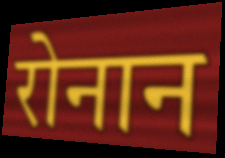
रोनान